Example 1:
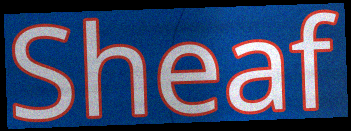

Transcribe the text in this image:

Sheaf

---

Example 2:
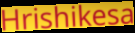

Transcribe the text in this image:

Hrishikesa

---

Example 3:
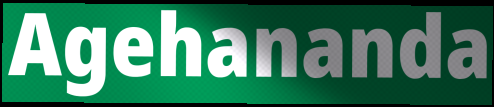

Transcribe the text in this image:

Agehananda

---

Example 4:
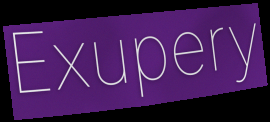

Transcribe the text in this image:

Exupery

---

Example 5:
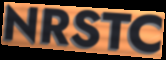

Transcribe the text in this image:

NRSTC